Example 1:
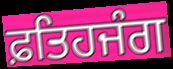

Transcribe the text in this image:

ਫ਼ਤਿਹਜੰਗ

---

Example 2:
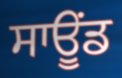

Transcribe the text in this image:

ਸਾਊਂਡ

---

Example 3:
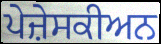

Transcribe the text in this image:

ਪੇਜ਼ੇਸਕੀਅਨ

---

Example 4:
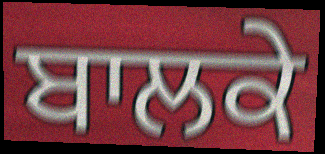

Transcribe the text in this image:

ਬਾਲਕੇ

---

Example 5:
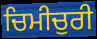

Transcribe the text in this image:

ਚਿਮੀਚੁਰੀ